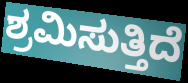
ಶ್ರಮಿಸುತ್ತಿದೆ